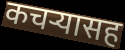
कचऱ्यासह